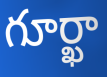
గూర్ఖా